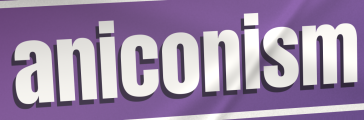
aniconism